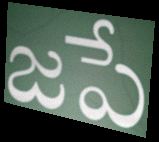
జపే